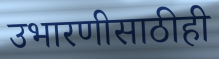
उभारणीसाठीही